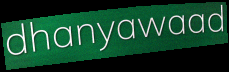
dhanyawaad